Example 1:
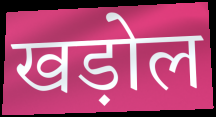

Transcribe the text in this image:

खड़ोल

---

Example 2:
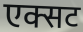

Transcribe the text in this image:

एक्सट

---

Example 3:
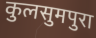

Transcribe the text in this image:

कुलसुमपुरा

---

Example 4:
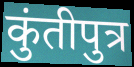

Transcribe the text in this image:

कुंतीपुत्र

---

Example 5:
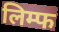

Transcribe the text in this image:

लिम्फ